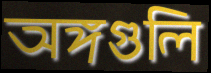
অঙ্গগুলি